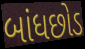
બાંધછોડ